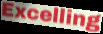
Excelling